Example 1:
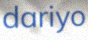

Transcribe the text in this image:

dariyo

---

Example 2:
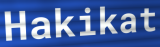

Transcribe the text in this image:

Hakikat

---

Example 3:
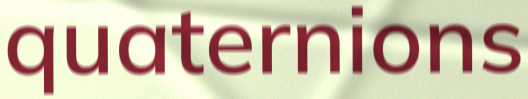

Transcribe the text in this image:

quaternions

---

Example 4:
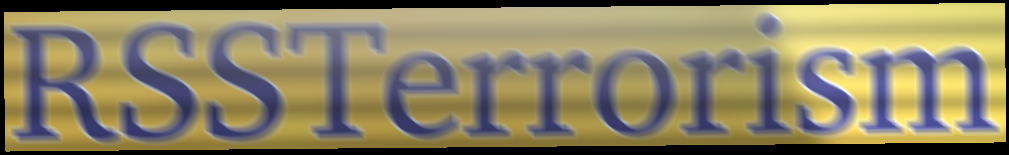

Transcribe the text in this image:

RSSTerrorism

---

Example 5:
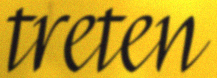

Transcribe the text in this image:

treten